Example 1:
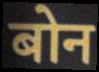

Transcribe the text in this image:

बोन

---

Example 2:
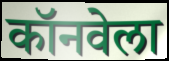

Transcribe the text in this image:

कॉनवेला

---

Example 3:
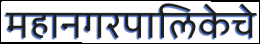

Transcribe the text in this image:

महानगरपालिकेचे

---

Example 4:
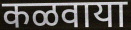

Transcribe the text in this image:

कळवाया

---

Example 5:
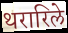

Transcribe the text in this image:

थरारिले